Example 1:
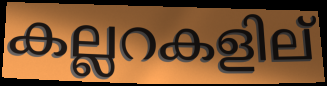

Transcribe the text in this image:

കല്ലറകളില്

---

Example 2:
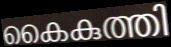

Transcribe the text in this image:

കൈകുത്തി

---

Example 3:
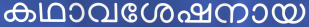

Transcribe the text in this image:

കഥാവശേഷനായ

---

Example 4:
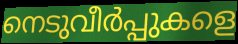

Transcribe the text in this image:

നെടുവീർപ്പുകളെ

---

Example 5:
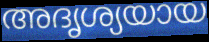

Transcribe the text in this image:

അദൃശ്യയായ